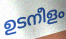
ഉടനീളം